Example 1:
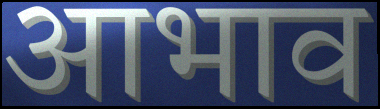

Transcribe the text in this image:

आभाव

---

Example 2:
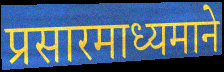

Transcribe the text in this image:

प्रसारमाध्यमाने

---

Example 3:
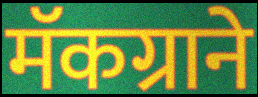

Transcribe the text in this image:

मॅकग्राने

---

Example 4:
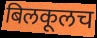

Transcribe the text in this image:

बिलकूलच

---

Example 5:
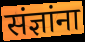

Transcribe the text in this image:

संज्ञांना